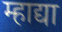
म्हाद्या